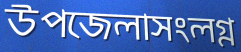
উপজেলাসংলগ্ন